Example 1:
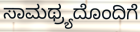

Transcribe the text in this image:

ಸಾಮಥ್ರ್ಯದೊಂದಿಗೆ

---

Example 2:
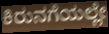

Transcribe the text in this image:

ಕಿರುನಗೆಯಲ್ಲೇ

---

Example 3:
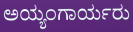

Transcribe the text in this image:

ಅಯ್ಯಂಗಾರ್ಯರು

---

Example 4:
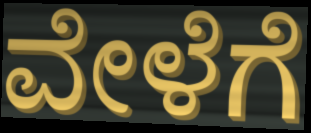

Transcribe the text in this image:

ವೇಳೆಗೆ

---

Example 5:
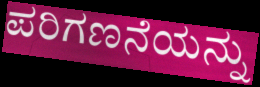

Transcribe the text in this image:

ಪರಿಗಣನೆಯನ್ನು